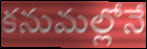
కనుమల్లోనే